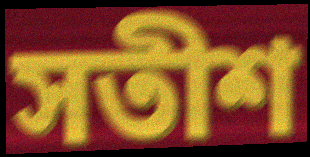
সতীশ